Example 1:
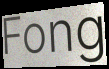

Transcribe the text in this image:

Fong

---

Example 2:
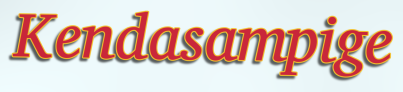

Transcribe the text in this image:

Kendasampige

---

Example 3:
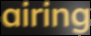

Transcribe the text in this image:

airing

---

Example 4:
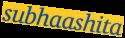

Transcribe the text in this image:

subhaashita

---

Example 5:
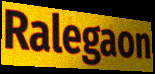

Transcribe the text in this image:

Ralegaon